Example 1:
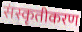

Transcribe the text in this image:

संस्कृतीकरण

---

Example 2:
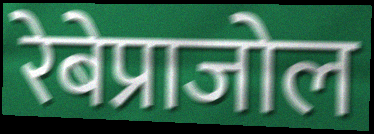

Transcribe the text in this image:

रेबेप्राजोल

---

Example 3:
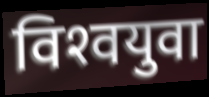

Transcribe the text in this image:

विश्वयुवा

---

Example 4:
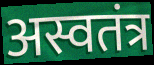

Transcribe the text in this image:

अस्वतंत्र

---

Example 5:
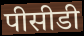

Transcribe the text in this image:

पीसीडी